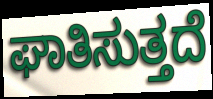
ಘಾತಿಸುತ್ತದೆ